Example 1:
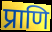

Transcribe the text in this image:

प्राणि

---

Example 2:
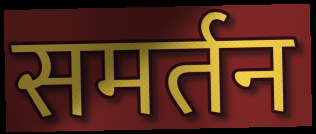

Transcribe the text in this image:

समर्तन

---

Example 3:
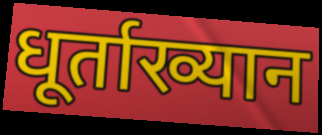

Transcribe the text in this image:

धूर्ताख्यान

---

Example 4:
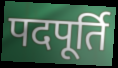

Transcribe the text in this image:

पदपूर्ति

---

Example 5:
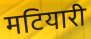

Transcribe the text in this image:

मटियारी